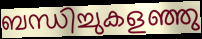
ബന്ധിച്ചുകളഞ്ഞു